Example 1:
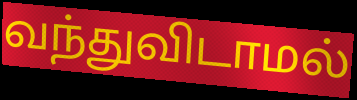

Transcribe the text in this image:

வந்துவிடாமல்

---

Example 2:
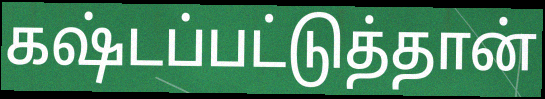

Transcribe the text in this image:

கஷ்டப்பட்டுத்தான்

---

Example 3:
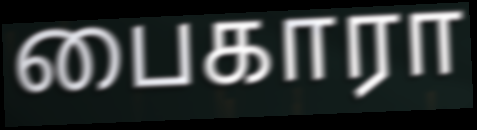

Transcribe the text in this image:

பைகாரா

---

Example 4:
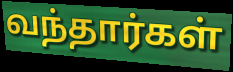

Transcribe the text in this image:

வந்தார்கள்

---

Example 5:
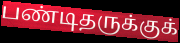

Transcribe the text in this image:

பண்டிதருக்குக்